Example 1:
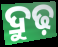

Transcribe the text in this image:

ଦ୍ରୁଢ଼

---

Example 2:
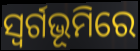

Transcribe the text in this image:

ସ୍ଵର୍ଗଭୂମିରେ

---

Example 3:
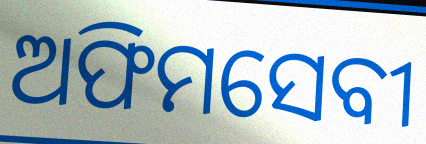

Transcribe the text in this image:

ଅଫିମସେବୀ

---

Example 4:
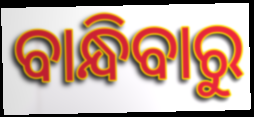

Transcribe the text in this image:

ବାନ୍ଧିବାରୁ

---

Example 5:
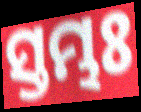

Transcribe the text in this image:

ସ୍ତମ୍ଭଃ